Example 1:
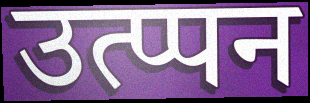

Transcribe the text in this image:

उत्प्पन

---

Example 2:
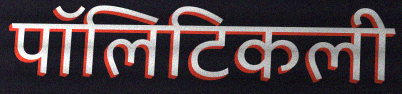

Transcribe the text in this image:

पॉलिटिकली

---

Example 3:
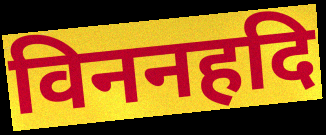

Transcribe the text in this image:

विननहदि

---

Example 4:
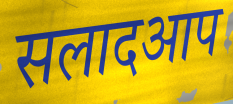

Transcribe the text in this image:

सलादआप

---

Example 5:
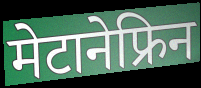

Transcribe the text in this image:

मेटानेफ्रिन